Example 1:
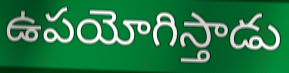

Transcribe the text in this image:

ఉపయోగిస్తాడు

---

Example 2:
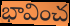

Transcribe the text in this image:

భావించ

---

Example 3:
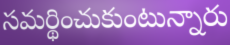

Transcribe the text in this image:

సమర్థించుకుంటున్నారు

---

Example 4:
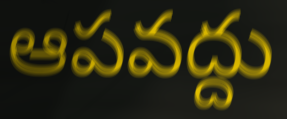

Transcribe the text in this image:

ఆపవద్దు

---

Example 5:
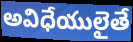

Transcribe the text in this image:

అవిధేయులైతే